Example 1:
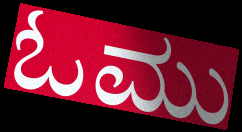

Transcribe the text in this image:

ಓಮು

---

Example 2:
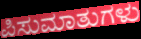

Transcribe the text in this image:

ಪಿಸುಮಾತುಗಳು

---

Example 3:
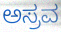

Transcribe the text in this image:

ಅಸ್ರವ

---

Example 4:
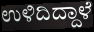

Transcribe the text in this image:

ಉಳಿದಿದ್ದಾಳೆ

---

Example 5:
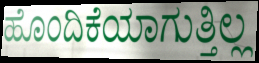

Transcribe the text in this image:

ಹೊಂದಿಕೆಯಾಗುತ್ತಿಲ್ಲ